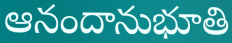
ఆనందానుభూతి